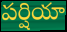
పర్షియా